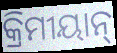
କ୍ରିମୀୟାନ୍